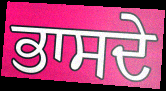
ਭਾਸਦੇ